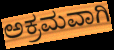
ಅಕ್ರಮವಾಗಿ